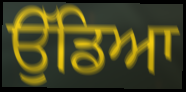
ਉੱਡਿਆ